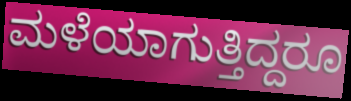
ಮಳೆಯಾಗುತ್ತಿದ್ದರೂ